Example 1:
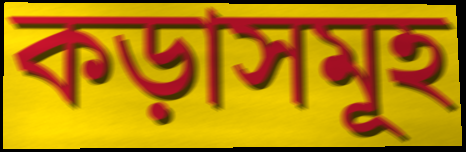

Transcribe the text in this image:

কড়াসমূহ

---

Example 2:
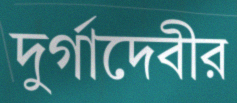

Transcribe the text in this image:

দুর্গাদেবীর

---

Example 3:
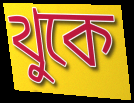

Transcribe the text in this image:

থুকে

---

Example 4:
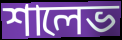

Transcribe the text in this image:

শালেভ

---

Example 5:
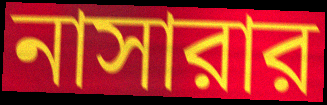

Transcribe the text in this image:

নাসারার